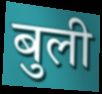
बुली